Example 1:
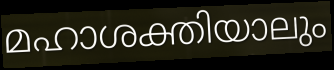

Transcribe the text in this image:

മഹാശക്തിയാലും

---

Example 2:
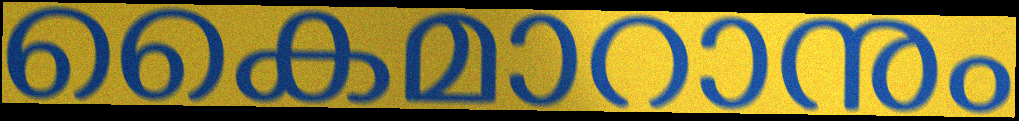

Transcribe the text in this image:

കൈമാറാനും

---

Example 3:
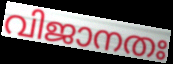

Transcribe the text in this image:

വിജാനതഃ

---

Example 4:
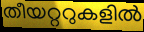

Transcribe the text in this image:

തീയറ്ററുകളിൽ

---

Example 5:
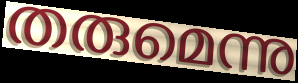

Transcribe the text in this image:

തരുമെന്നു